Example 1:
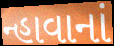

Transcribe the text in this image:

ન્હાવાનાં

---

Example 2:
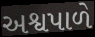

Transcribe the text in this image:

અશ્વપાળે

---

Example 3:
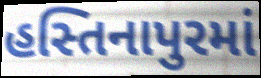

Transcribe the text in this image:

હસ્તિનાપુરમાં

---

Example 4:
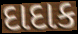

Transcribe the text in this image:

દાદાક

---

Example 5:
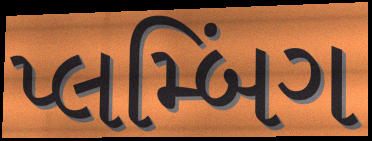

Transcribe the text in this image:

પ્લમ્બિંગ